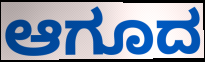
ಆಗೂದ